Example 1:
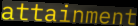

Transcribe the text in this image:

attainment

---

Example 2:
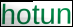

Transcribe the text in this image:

hotun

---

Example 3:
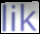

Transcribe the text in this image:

lik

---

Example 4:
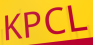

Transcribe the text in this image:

KPCL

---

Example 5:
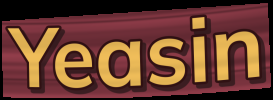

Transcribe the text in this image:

Yeasin